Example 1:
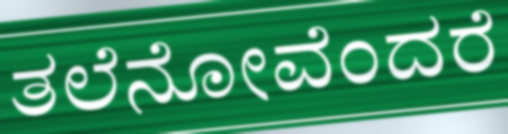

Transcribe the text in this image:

ತಲೆನೋವೆಂದರೆ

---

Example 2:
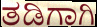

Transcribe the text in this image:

ತಡಿಗಾಗಿ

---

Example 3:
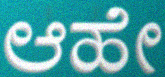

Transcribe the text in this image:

ಆಹೇ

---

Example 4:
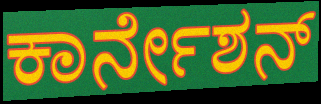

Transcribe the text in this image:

ಕಾರ್ನೇಶನ್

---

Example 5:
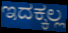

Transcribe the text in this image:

ಇದಕ್ಕಲ್ಲ